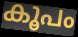
കൂപം